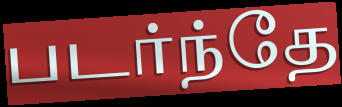
படர்ந்தே